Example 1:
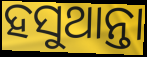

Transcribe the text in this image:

ହସୁଥାନ୍ତା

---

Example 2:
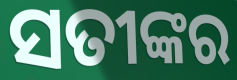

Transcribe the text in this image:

ସତୀଙ୍କର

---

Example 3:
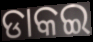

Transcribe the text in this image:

ଡାକଇ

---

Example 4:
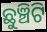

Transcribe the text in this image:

ଛୁଞ୍ଚିଟି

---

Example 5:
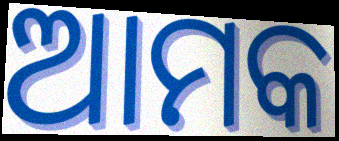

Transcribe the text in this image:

ଆମକ